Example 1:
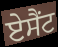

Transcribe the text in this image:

ਏਸੈਂਟ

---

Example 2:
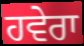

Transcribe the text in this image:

ਹਵੇਰਾ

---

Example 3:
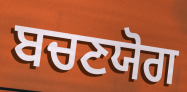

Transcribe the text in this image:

ਬਚਣਯੋਗ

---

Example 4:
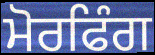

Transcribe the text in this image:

ਮੋਰਫਿੰਗ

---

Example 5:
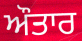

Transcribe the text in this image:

ਔਤਾਰ